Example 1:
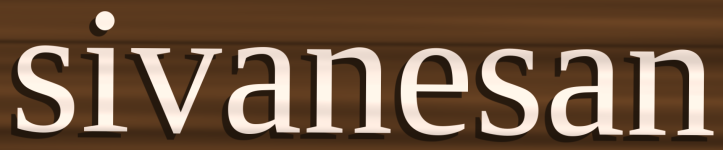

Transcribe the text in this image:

sivanesan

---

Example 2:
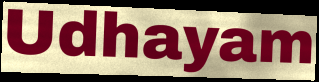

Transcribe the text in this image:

Udhayam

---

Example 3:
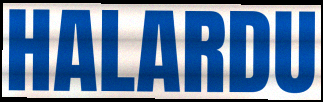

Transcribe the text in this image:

HALARDU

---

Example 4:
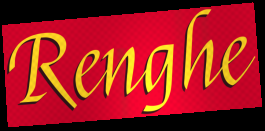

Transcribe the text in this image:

Renghe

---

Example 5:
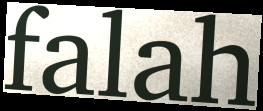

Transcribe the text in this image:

falah